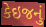
કેઇજનું